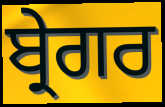
ਬ੍ਰੇਗਰ